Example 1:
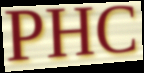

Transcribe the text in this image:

PHC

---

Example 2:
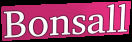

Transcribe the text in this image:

Bonsall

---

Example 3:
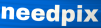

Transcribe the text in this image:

needpix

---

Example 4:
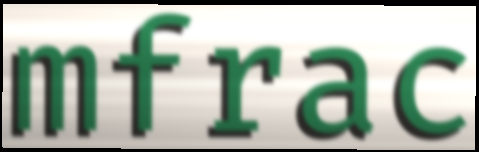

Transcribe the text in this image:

mfrac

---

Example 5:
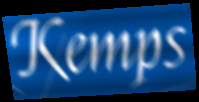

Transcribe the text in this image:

Kemps